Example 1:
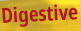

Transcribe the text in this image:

Digestive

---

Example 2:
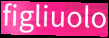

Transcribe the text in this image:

figliuolo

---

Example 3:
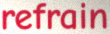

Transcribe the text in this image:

refrain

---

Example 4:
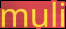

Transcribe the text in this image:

muli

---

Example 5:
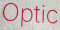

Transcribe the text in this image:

Optic